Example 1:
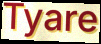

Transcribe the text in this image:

Tyare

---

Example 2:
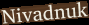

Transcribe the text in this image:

Nivadnuk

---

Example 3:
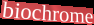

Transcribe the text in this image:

biochrome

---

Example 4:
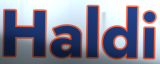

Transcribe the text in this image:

Haldi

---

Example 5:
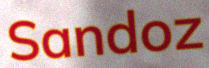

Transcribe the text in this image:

Sandoz